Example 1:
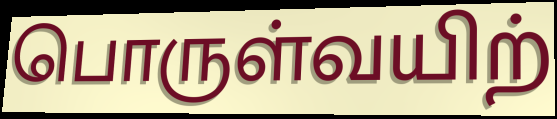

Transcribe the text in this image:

பொருள்வயிற்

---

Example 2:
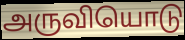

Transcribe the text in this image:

அருவியொடு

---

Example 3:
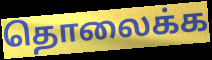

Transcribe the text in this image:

தொலைக்க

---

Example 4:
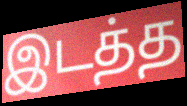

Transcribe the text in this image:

இடத்த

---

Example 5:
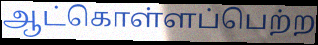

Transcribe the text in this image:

ஆட்கொள்ளப்பெற்ற